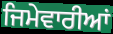
ਜਿਮੇਵਾਰੀਆਂ